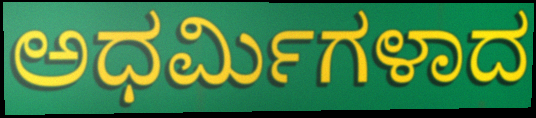
ಅಧರ್ಮಿಗಳಾದ